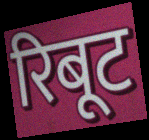
रिबूट